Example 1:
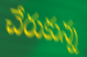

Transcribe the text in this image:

చేరుకున్న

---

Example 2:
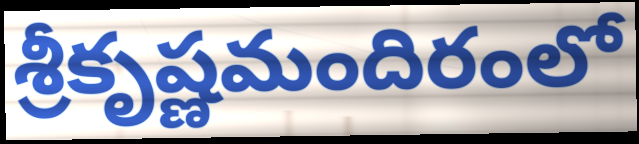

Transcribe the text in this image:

శ్రీకృష్ణమందిరంలో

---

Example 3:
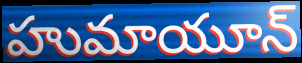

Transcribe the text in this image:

హుమాయూన్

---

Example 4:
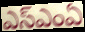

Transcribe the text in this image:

ఎస్ఎంఏ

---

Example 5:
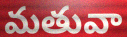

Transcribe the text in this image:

మతువా